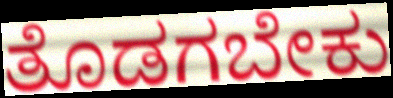
ತೊಡಗಬೇಕು